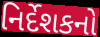
નિર્દેશકનો